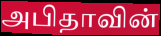
அபிதாவின்